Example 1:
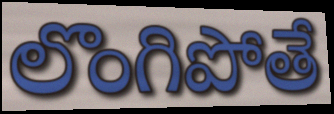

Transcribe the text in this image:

లొంగిపోతే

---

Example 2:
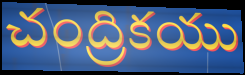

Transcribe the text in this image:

చంద్రికయు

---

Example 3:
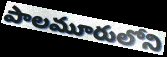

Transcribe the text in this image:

పాలమూరులోని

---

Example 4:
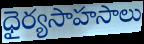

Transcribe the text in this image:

ధైర్యసాహసాలు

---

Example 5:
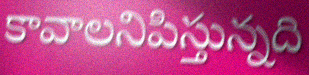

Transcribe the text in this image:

కావాలనిపిస్తున్నది